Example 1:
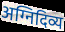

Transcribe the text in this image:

अग्निदिव्य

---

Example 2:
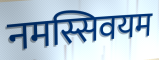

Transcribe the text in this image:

नमस्सिवयम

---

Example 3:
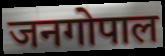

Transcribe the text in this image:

जनगोपाल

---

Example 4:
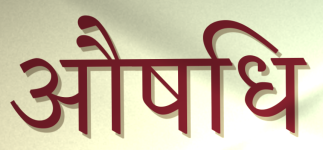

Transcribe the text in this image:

औषधि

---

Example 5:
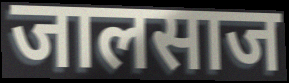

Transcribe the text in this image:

जालसाज